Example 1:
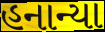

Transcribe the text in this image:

હનાન્યા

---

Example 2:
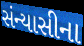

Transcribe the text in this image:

સંન્યાસીના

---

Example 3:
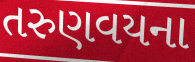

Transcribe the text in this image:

તરુણવયના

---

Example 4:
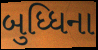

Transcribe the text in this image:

બુધ્ધિના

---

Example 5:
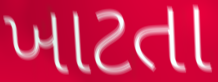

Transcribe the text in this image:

ખાટતા